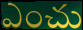
ఎంచు